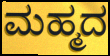
ಮಹ್ಮದ